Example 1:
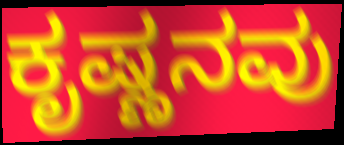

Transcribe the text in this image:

ಕೃಷ್ಣನವು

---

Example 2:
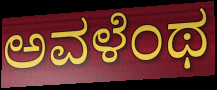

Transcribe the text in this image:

ಅವಳೆಂಥ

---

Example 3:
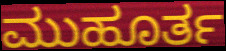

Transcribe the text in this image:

ಮುಹೂರ್ತ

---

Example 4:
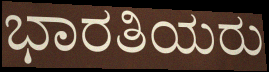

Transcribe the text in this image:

ಭಾರತಿಯರು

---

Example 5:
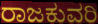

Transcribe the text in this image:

ರಾಜಕುವರಿ